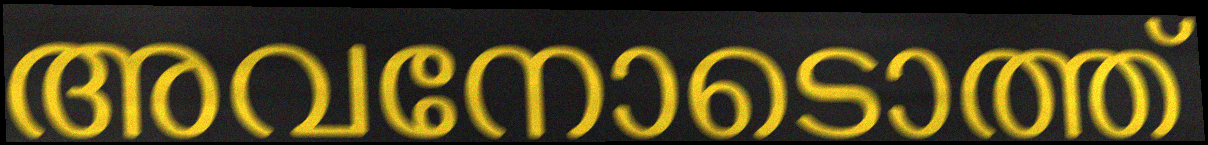
അവനോടൊത്ത്